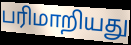
பரிமாறியது